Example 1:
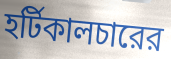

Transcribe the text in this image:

হর্টিকালচারের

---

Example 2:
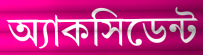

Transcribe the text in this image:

অ্যাকসিডেন্ট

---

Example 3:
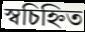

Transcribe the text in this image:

স্বচিহ্নিত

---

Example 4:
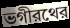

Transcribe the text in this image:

ভগীরথের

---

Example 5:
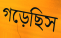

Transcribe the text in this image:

গড়েছিস